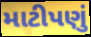
માટીપણું